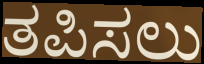
ತಪಿಸಲು